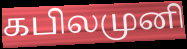
கபிலமுனி